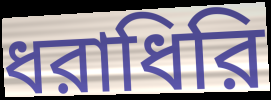
ধরাধিরি